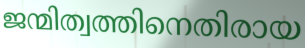
ജന്മിത്വത്തിനെതിരായ